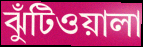
ঝুঁটিওয়ালা